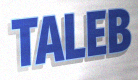
TALEB